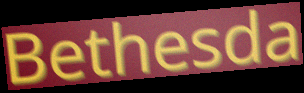
Bethesda